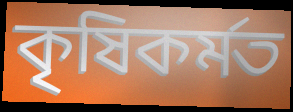
কৃষিকৰ্মত